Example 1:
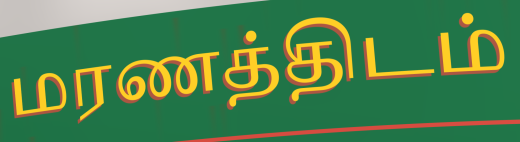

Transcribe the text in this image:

மரணத்திடம்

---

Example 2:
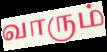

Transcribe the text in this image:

வாரும்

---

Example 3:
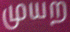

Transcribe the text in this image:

முயற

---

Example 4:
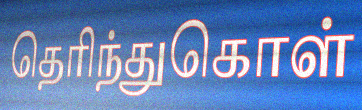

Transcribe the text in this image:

தெரிந்துகொள்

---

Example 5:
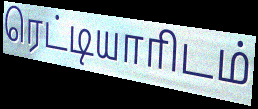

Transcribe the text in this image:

ரெட்டியாரிடம்